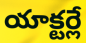
యాక్టర్లే